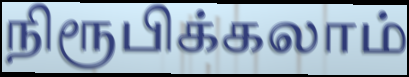
நிரூபிக்கலாம்